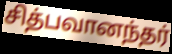
சித்பவானந்தர்